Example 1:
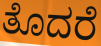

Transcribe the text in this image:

ತೊದರೆ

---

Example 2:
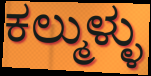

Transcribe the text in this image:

ಕಲ್ಮುಳ್ಳು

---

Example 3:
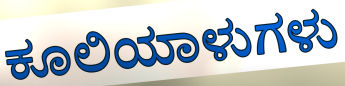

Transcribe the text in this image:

ಕೂಲಿಯಾಳುಗಳು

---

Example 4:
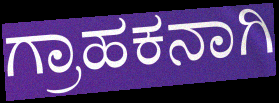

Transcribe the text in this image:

ಗ್ರಾಹಕನಾಗಿ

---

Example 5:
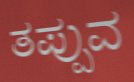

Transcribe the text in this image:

ತಪ್ಪುವ